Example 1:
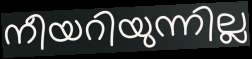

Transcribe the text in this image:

നീയറിയുന്നില്ല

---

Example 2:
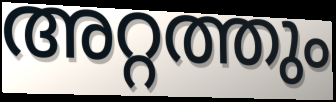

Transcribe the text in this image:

അറ്റത്തും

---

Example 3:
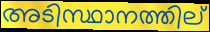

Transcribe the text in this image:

അടിസ്ഥാനത്തില്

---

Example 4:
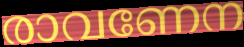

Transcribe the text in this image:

രാവണേന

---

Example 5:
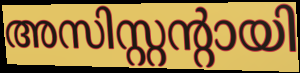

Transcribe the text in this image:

അസിസ്റ്റന്റായി